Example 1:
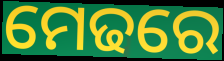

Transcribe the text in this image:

ମେଢରେ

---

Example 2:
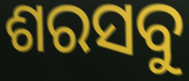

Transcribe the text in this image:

ଶରସବୁ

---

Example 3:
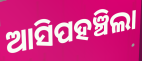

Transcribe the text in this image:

ଆସିପହଞ୍ଚିଲା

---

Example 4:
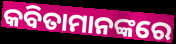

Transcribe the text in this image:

କବିତାମାନଙ୍କରେ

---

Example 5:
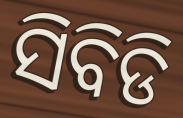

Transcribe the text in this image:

ସିବିଡି